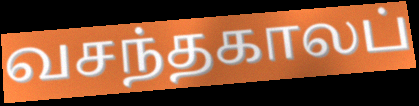
வசந்தகாலப்